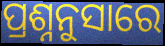
ପ୍ରଶ୍ନନୁସାରେ